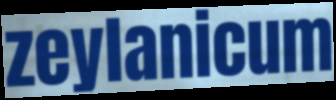
zeylanicum